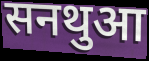
सनथुआ